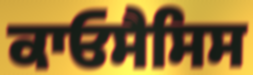
ਕਾਓਸੈਸਿਸ